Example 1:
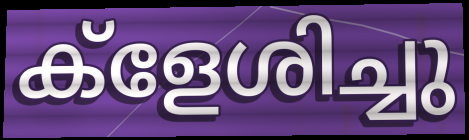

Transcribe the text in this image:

ക്ളേശിച്ചു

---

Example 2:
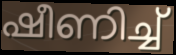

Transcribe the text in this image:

ഷീണിച്ച്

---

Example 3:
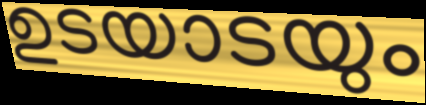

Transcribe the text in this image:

ഉടയാടയും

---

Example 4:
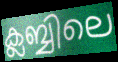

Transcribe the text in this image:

ക്ലബ്ബിലെ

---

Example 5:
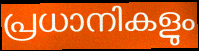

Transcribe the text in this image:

പ്രധാനികളും